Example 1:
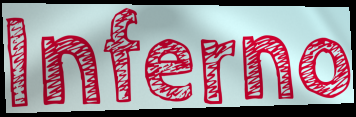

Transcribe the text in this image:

Inferno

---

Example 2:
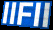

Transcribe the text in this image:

IIFII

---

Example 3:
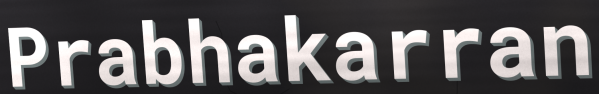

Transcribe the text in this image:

Prabhakarran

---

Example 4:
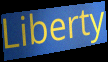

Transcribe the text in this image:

Liberty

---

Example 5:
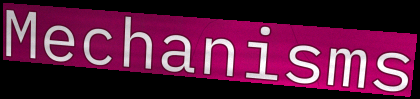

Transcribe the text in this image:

Mechanisms